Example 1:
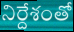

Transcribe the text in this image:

నిర్దేశంతో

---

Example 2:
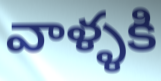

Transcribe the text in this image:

వాళ్ళకి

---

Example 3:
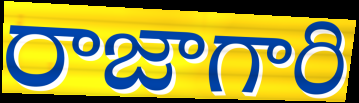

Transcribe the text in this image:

రాజాగారి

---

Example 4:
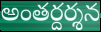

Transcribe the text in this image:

అంతర్దర్శన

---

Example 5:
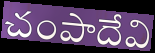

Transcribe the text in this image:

చంపాదేవి